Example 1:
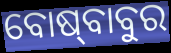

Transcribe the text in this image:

ବୋଷ୍‍ବାବୁର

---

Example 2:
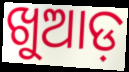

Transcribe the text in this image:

ଖୁଆଡ଼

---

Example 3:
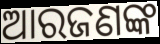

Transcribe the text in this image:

ଆରଜଣଙ୍କ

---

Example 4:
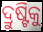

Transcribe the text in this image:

ଦ୍ରୁଷ୍ଟିକୁ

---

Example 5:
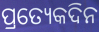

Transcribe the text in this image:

ପ୍ରତ୍ୟେକଦିନ